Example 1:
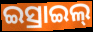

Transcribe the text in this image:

ଇସ୍ରାଇଲ୍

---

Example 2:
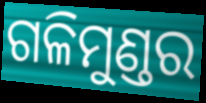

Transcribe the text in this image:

ଗଳିମୁଣ୍ଡର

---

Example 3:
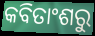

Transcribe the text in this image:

କବିତାଂଶରୁ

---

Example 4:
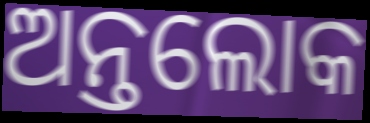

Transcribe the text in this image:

ଅନ୍ତଲୋକ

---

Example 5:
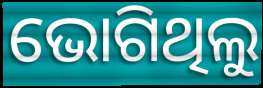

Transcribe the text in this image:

ଭୋଗିଥିଲୁ